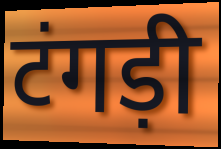
टंगड़ी